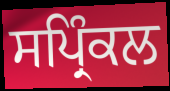
ਸਪ੍ਰਿੰਕਲ